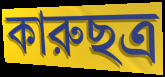
কারুছত্র